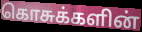
கொசுக்களின்